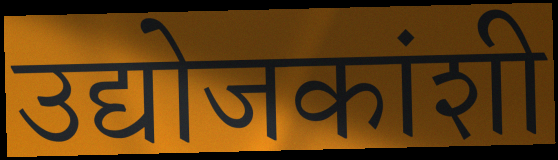
उद्योजकांशी